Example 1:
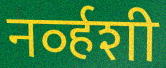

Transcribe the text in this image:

नर्व्हशी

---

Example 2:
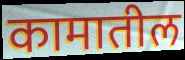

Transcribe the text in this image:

कामातील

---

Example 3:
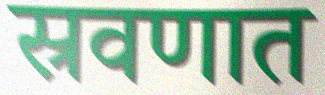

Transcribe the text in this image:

स्रवणात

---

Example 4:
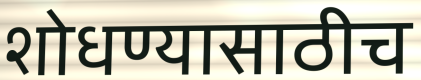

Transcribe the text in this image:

शोधण्यासाठीच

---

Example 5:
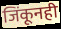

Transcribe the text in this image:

जिंकूनही